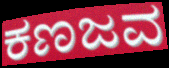
ಕಣಜವ